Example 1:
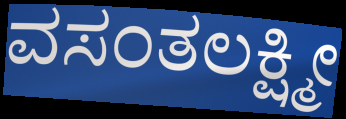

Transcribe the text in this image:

ವಸಂತಲಕ್ಷ್ಮೀ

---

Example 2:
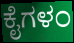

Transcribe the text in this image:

ಕೈಗಳಂ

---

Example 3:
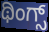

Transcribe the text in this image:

ಥಿಂಗ್ಸ್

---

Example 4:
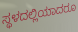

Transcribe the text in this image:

ಸ್ಥಳದಲ್ಲಿಯಾದರೂ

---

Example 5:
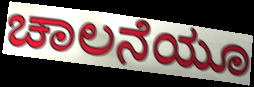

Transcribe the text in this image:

ಚಾಲನೆಯೂ